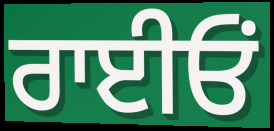
ਰਾਈਓਂ